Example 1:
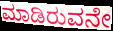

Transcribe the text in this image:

ಮಾಡಿರುವನೇ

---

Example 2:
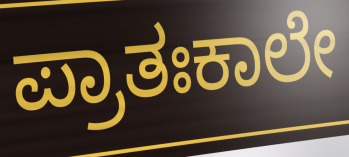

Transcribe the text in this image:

ಪ್ರಾತಃಕಾಲೇ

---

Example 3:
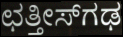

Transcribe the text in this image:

ಛತ್ತೀಸ್‌ಗಢ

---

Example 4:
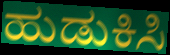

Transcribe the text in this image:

ಹುಡುಕಿಸಿ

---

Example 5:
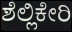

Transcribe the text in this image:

ಶೆಲ್ಲಿಕೇರಿ